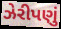
ઝેરીપણું